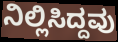
ನಿಲ್ಲಿಸಿದ್ದವು